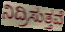
ನಿದ್ರಿಸುತ್ತವೆ